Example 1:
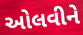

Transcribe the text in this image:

ઓલવીને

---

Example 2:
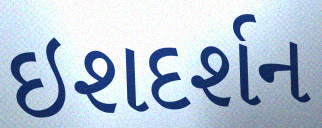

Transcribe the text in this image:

ઇશદર્શન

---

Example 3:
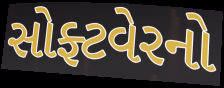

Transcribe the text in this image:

સોફ્ટવેરનો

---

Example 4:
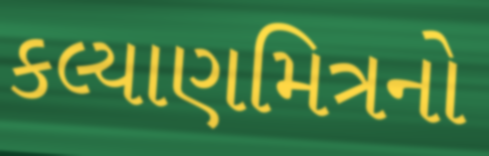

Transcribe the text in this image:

કલ્યાણમિત્રનો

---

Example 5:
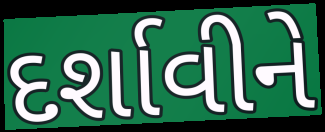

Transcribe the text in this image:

દર્શાવીને